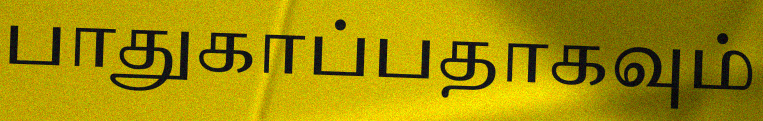
பாதுகாப்பதாகவும்